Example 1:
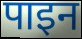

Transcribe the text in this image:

पाइन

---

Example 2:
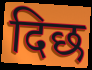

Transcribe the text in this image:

दिछ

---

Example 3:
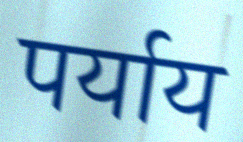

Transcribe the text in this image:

पर्याय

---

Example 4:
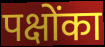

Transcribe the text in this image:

पक्षोंका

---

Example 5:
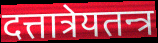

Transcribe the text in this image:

दत्तात्रेयतन्त्र